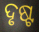
ଦୃଷ୍ଟ